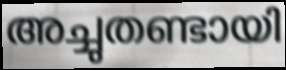
അച്ചുതണ്ടായി